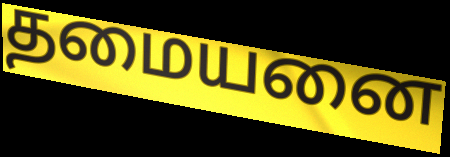
தமையனை